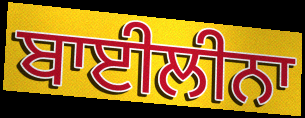
ਬਾਈਲੀਨਾ